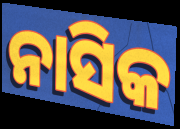
ନାସିକ